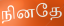
நினதே